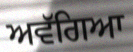
ਅਵੱਗਿਆ